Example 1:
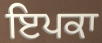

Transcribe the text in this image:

ਇਪਕਾ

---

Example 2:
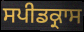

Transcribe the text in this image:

ਸਪੀਡਕ੍ਰਾਸ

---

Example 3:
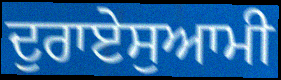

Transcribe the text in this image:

ਦੁਰਾਏਸੁਆਮੀ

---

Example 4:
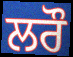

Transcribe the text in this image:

ਲਰੌ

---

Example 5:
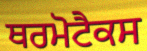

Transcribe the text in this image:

ਥਰਮੋਟੈਕਸ